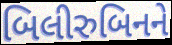
બિલીરુબિનને